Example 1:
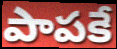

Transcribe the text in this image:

పాపకే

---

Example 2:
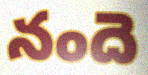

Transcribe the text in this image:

నందె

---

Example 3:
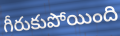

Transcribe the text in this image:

గీరుకుపోయింది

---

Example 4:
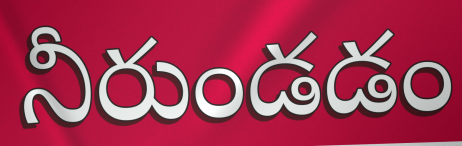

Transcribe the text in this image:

నీరుండడం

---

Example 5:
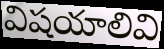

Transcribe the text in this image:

విషయాలివి